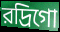
রদ্রিগো